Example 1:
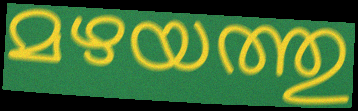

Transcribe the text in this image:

മഴയത്തു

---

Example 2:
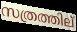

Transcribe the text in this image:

സത്രത്തില്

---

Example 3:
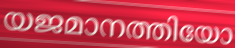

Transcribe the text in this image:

യജമാനത്തിയോ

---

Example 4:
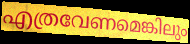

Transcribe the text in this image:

എത്രവേണമെങ്കിലും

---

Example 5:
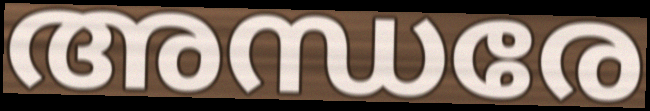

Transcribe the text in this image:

അന്ധരേ